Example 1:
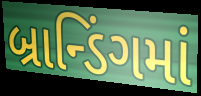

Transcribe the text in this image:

બ્રાન્ડિંગમાં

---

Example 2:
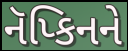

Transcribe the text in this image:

નૅપ્કિનને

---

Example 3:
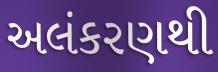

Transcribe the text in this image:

અલંકરણથી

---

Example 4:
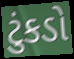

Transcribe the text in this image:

ટુંકડો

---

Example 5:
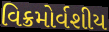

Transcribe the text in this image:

વિક્રમોર્વશીય